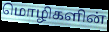
மொழிகளின்